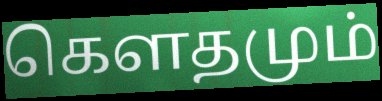
கெளதமும்